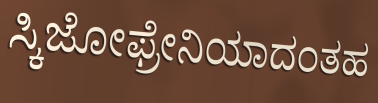
ಸ್ಕಿಜೋಫ್ರೇನಿಯಾದಂತಹ